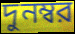
দুনম্বর